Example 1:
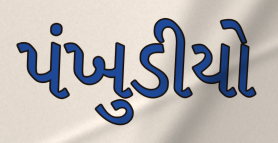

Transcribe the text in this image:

પંખુડીયો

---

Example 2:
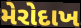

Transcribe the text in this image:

મેરોદાખ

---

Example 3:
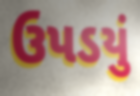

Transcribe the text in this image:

ઉપડયું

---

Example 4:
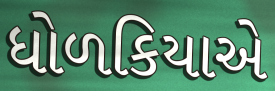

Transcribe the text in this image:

ધોળકિયાએ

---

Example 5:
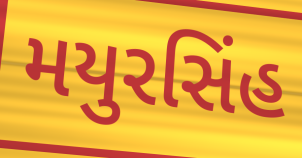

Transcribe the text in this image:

મયુરસિંહ